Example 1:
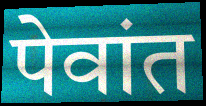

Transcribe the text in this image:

पेवांत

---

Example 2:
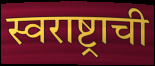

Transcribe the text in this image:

स्वराष्ट्राची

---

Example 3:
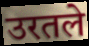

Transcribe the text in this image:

उरतले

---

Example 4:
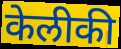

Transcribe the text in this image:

केलीकी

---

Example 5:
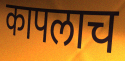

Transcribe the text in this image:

कापलाच